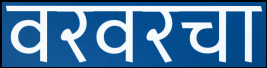
वरवरचा